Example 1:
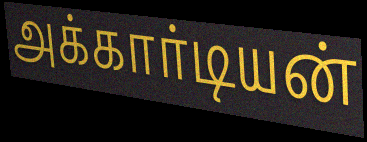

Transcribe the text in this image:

அக்கார்டியன்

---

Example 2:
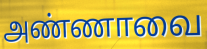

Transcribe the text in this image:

அண்ணாவை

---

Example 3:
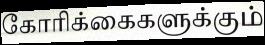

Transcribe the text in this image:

கோரிக்கைகளுக்கும்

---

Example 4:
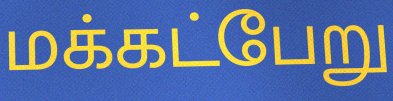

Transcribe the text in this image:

மக்கட்பேறு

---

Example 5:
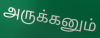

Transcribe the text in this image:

அருக்கனும்